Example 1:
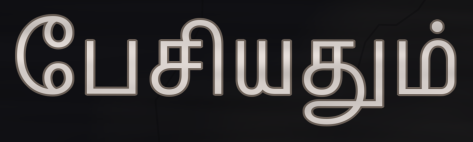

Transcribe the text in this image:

பேசியதும்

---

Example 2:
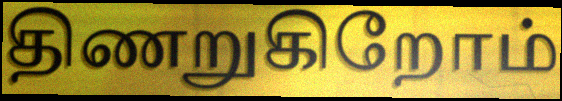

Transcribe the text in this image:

திணறுகிறோம்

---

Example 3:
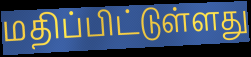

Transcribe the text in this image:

மதிப்பிட்டுள்ளது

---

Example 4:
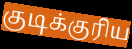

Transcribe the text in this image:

குடிக்குரிய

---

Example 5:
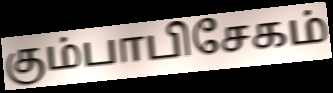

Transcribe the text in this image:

கும்பாபிசேகம்